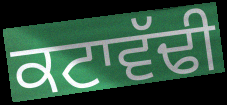
ਕਟਾਵੱਢੀ